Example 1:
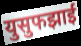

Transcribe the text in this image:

युसुफझाई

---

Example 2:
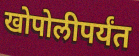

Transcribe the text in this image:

खोपोलीपर्यंत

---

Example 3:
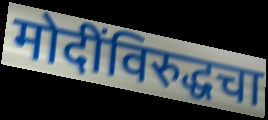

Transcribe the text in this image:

मोदींविरुद्धचा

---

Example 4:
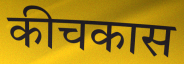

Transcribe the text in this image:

कीचकास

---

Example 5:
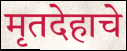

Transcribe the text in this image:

मृतदेहाचे